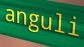
anguli